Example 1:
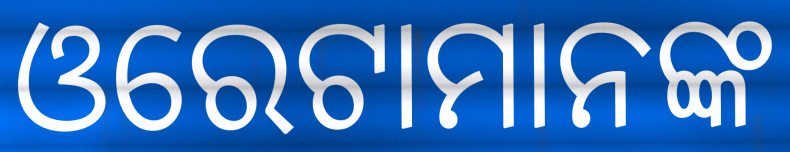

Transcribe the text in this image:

ଓରେଟାମାନଙ୍କ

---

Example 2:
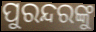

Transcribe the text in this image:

ପୁରନ୍ଦରଙ୍କୁ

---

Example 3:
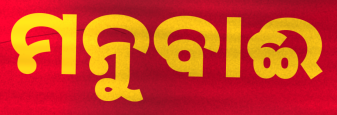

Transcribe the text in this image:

ମନୁବାଈ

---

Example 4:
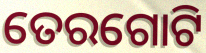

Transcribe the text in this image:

ତେରଗୋଟି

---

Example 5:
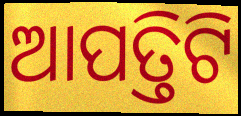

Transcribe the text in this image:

ଆପତ୍ତିଟି